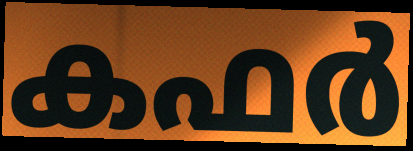
കഫർ